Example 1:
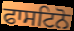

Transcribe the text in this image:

ਫਾਸਟਿਨੋ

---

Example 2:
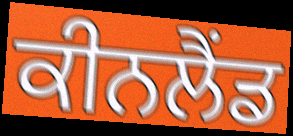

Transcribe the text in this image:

ਕੀਨਲੈਂਡ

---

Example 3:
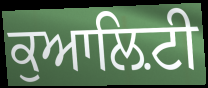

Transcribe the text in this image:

ਕੁਆਲ਼ਿਟੀ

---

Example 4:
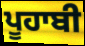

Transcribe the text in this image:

ਪੂਹਾਬੀ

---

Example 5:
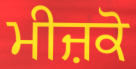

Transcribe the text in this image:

ਮੀਜ਼ਕੋ